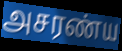
அசரண்ய